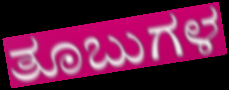
ತೂಬುಗಳ